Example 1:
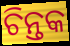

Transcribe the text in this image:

ଚିନ୍ତକ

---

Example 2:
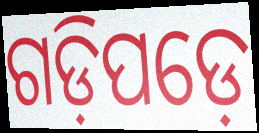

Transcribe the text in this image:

ଗଡ଼ିପଡ଼େ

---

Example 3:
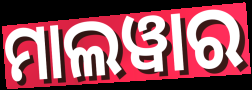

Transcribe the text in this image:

ମାଲୱାର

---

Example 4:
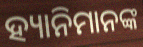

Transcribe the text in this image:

ହ୍ୟାନିମାନଙ୍କ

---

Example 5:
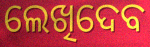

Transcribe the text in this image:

ଲେଖିଦେବ